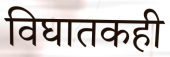
विघातकही